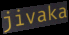
jivaka